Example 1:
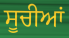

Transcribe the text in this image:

ਸੂਚੀਆਂ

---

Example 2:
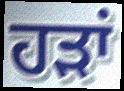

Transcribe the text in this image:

ਹੜਾਂ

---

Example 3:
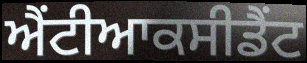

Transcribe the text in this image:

ਐਂਟੀਆਕਸੀਡੈਂਟ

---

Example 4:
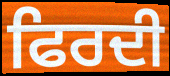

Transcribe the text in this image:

ਫਿਰਦੀ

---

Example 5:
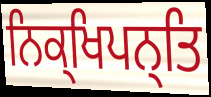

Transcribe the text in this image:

ਨਿਕ੍ਖਿਪਨ੍ਤਿ